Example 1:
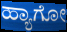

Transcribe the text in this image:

ಹ್ಯಾಗೋ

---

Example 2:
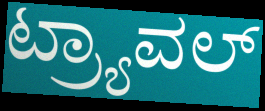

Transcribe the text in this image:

ಟ್ರ್ಯಾವಲ್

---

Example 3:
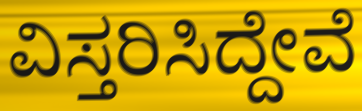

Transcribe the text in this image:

ವಿಸ್ತರಿಸಿದ್ದೇವೆ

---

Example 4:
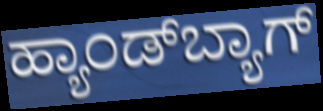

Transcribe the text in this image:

ಹ್ಯಾಂಡ್‌ಬ್ಯಾಗ್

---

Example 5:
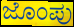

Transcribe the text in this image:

ಜೊಂಪು